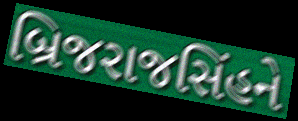
બ્રિજરાજસિંહને